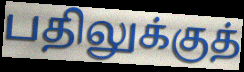
பதிலுக்குத்